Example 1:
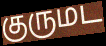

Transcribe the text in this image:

குருமட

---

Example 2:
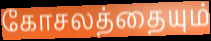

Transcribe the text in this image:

கோசலத்தையும்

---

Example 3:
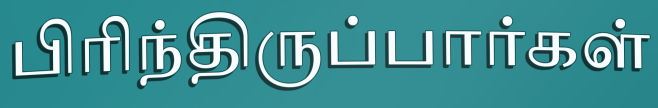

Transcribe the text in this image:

பிரிந்திருப்பார்கள்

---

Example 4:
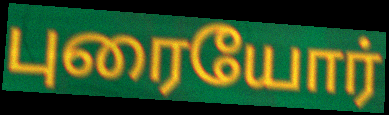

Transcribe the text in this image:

புரையோர்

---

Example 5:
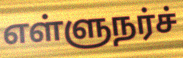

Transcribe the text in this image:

எள்ளுநர்ச்